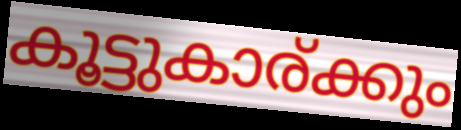
കൂട്ടുകാര്ക്കും